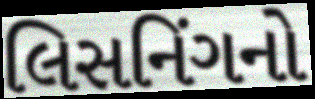
લિસનિંગનો